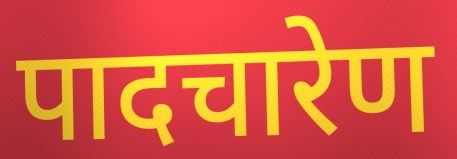
पादचारेण